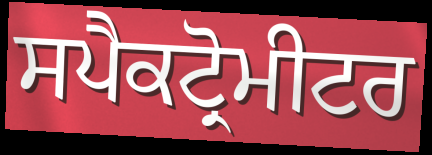
ਸਪੈਕਟ੍ਰੋਮੀਟਰ